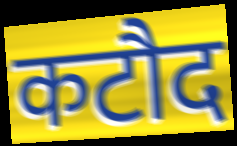
कटौद